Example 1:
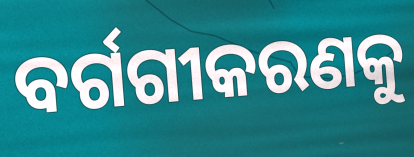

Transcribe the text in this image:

ବର୍ଗଗୀକରଣକୁ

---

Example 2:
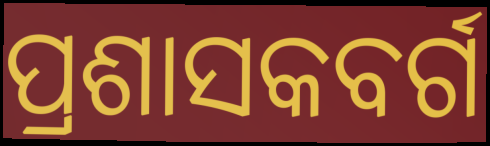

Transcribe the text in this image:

ପ୍ରଶାସକବର୍ଗ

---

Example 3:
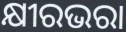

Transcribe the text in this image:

କ୍ଷୀରଭରା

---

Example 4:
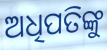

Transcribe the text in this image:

ଅଧିପତିଙ୍କୁ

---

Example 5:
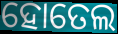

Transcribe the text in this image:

ହୋତେଲ